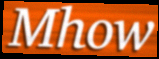
Mhow